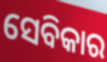
ସେବିକାର